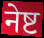
नेष्ट